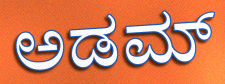
ಅಡಮ್